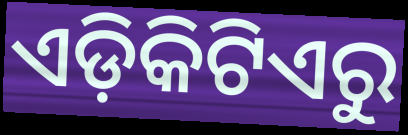
ଏଡ଼ିକିଟିଏରୁ